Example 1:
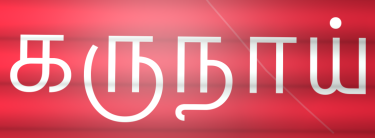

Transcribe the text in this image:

கருநாய்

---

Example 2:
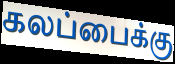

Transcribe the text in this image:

கலப்பைக்கு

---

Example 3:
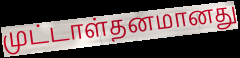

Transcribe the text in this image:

முட்டாள்தனமானது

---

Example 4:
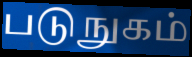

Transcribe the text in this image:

படுநுகம்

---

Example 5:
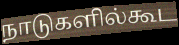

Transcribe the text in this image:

நாடுகளில்கூட